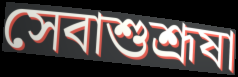
সেবাশুশ্রূষা